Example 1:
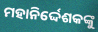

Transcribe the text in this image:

ମହାନିର୍ଦ୍ଦେଶକଙ୍କୁ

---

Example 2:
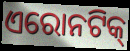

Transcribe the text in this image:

ଏରୋନଟିକ୍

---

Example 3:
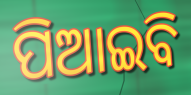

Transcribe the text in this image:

ପିଆଇବି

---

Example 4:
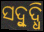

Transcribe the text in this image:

ସଦ୍ବୁଦ୍ଧି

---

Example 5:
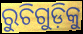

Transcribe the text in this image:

ରୁଚିଗୁଡ଼ିକୁ